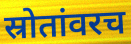
स्रोतांवरच